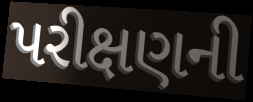
પરીક્ષણની